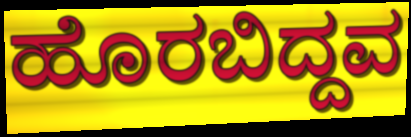
ಹೊರಬಿದ್ದವ